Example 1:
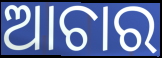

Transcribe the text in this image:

ଆଚାର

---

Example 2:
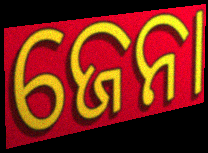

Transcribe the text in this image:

ଜେନା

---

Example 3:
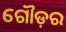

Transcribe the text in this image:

ଗୌଡ଼ର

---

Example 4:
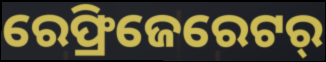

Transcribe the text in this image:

ରେଫ୍ରିଜେରେଟର୍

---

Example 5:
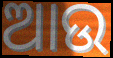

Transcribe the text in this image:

ଆଉ